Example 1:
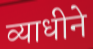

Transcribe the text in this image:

व्याधीने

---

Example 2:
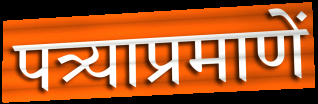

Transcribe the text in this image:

पत्र्याप्रमाणें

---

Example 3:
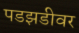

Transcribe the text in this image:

पडझडीवर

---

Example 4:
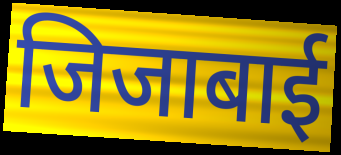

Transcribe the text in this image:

जिजाबाई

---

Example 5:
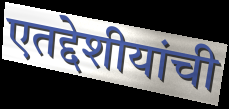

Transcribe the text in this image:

एतद्देशीयांची